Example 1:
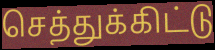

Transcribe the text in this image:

செத்துக்கிட்டு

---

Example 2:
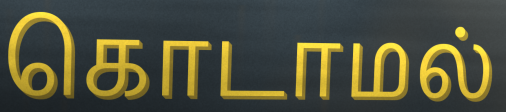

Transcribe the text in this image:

கொடாமல்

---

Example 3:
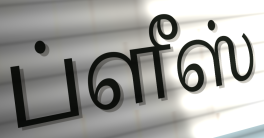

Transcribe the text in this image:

ப்ளீஸ்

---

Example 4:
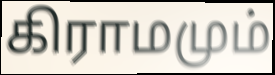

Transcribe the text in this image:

கிராமமும்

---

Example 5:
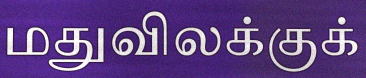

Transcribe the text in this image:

மதுவிலக்குக்